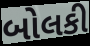
બોલકી